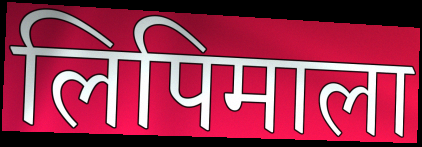
लिपिमाला